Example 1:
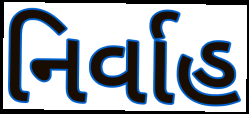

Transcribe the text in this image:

નિર્વાહ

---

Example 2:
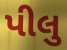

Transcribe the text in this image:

પીલુ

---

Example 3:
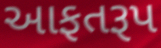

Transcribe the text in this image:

આફતરૂપ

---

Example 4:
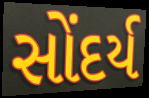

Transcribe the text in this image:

સોંદર્ય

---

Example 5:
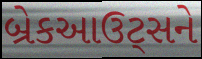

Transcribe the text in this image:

બ્રેકઆઉટ્સને